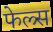
फेल्स